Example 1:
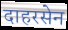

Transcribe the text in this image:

दाहरसेन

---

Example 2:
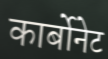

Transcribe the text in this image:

कार्बोनेट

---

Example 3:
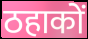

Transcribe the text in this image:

ठहाकों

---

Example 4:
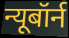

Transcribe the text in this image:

न्यूबॉर्न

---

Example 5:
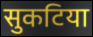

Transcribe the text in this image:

सुकटिया